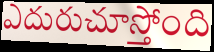
ఎదురుచూస్తోంది